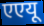
एएयू